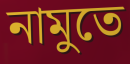
নামুতে